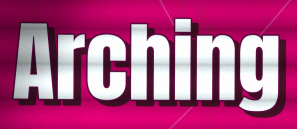
Arching